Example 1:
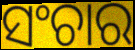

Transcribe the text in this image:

ସଂଚାର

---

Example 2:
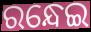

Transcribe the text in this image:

ରନ୍ଧେଇ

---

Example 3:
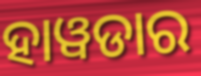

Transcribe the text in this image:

ହାୱଡାର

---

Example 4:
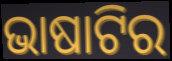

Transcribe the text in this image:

ଭାଷାଟିର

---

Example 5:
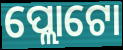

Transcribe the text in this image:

ପ୍ଲୋଟୋ